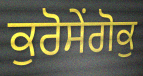
ਕੁਰੋਸੇਂਗੋਕੁ